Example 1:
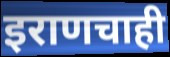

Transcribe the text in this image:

इराणचाही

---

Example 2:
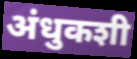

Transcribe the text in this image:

अंधुकशी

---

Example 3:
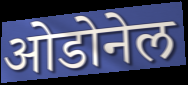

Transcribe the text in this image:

ओडोनेल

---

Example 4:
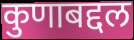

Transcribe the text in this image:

कुणाबद्दल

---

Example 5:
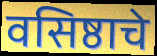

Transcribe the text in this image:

वसिष्ठाचे